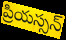
ప్రియస్సన్